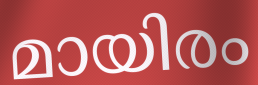
മായിരം